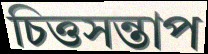
চিত্তসন্তাপ